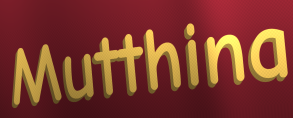
Mutthina